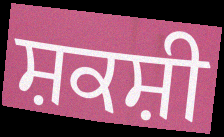
ਸ਼ਕਸ਼ੀ